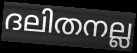
ദലിതനല്ല